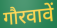
गौरवावें